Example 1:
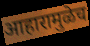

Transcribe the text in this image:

आहारामुळेच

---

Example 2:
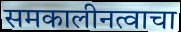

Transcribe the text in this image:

समकालीनत्वाचा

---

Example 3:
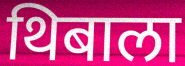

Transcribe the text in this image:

थिबाला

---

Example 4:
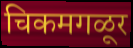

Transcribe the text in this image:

चिकमगळूर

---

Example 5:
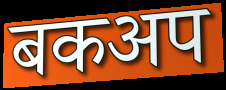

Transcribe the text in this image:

बकअप